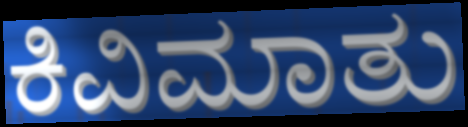
ಕಿವಿಮಾತು